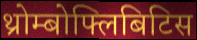
थ्रोम्बोफ्लिबिटिस